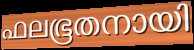
ഫലഭൂതനായി